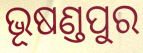
ଭୂଷଣ୍ଡପୁର